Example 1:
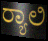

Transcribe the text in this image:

ರ‍್ಯಾಲಿ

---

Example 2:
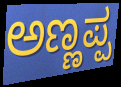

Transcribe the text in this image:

ಅಣ್ಣಪ್ಪ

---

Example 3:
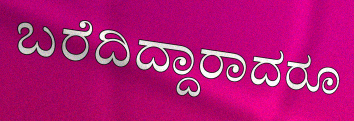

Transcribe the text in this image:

ಬರೆದಿದ್ದಾರಾದರೂ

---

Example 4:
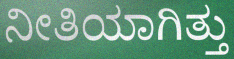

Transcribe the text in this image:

ನೀತಿಯಾಗಿತ್ತು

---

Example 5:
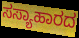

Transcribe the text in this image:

ಸಸ್ಯಾಹಾರದ